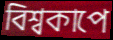
বিশ্বকাপে